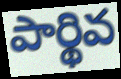
పార్థివ